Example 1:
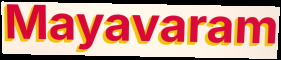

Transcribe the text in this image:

Mayavaram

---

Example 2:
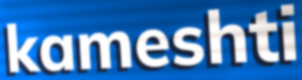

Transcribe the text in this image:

kameshti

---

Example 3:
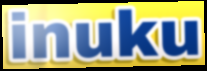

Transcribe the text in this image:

inuku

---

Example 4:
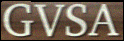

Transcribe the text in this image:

GVSA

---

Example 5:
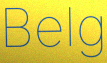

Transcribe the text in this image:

Belg